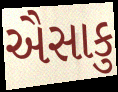
ઐસાકુ